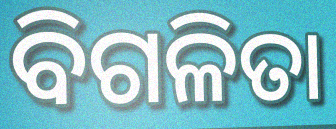
ବିଗଳିତା